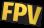
FPV